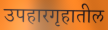
उपहारगृहातील